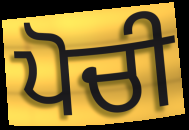
ਪੋਚੀ